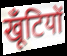
खूँटियों